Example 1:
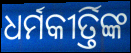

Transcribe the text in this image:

ଧର୍ମକୀର୍ତ୍ତିଙ୍କ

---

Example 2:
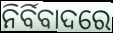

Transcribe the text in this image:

ନିର୍ବିବାଦରେ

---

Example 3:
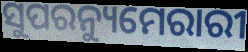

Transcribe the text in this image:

ସୁପରନ୍ୟୁମେରାରୀ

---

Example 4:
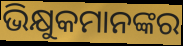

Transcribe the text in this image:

ଭିକ୍ଷୁକମାନଙ୍କର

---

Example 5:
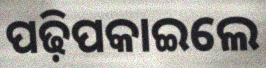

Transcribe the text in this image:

ପଢ଼ିପକାଇଲେ